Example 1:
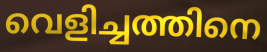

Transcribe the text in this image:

വെളിച്ചത്തിനെ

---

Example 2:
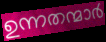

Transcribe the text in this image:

ഉന്നതന്മാർ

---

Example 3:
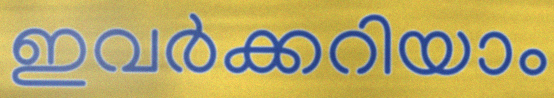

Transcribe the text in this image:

ഇവർക്കറിയാം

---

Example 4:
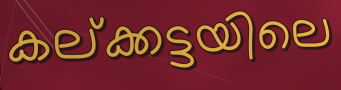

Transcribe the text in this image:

കല്ക്കട്ടയിലെ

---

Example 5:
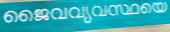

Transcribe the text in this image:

ജൈവവ്യവസ്ഥയെ